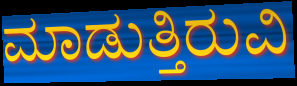
ಮಾಡುತ್ತಿರುವಿ